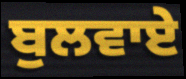
ਬੁਲਵਾਏ